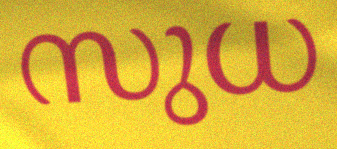
സുധ